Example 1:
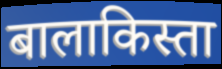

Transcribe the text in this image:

बालाकिस्ता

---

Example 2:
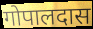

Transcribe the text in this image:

गोपालदास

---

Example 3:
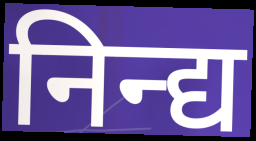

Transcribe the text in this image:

निन्द्य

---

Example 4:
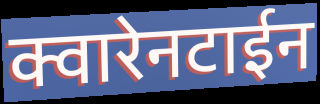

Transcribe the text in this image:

क्वारेनटाईन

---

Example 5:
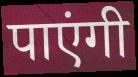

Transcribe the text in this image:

पाएंगी